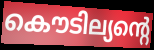
കൌടില്യന്റെ